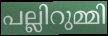
പല്ലിറുമ്മി